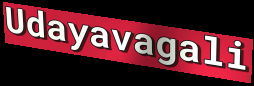
Udayavagali